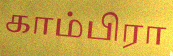
காம்பிரா